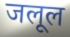
जलूल